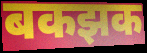
बकझक